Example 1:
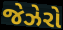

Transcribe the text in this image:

જેઝેરો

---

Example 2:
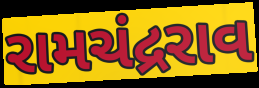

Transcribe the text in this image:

રામચંદ્રરાવ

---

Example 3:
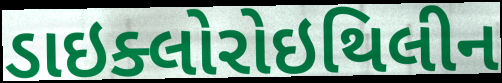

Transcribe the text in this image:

ડાઇક્લોરોઇથિલીન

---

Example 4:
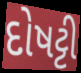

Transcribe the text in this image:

દોષટ્ટી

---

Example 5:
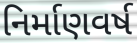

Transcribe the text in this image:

નિર્માણવર્ષ